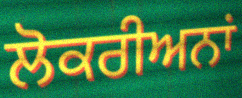
ਲੋਕਰੀਅਨਾਂ